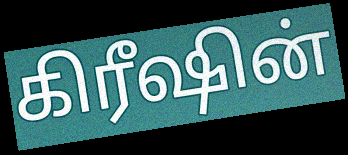
கிரீஷின்